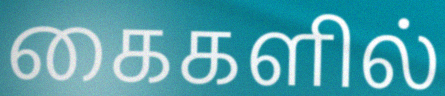
கைகளில்